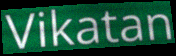
Vikatan